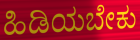
ಹಿಡಿಯಬೇಕು